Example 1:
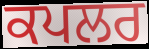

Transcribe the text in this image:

ਕਪਲਰ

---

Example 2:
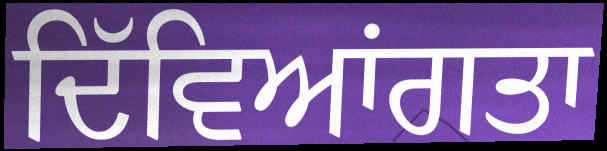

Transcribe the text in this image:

ਦਿੱਵਿਆਂਗਤਾ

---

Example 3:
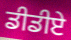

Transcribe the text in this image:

ਡੀਡੀਏ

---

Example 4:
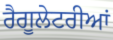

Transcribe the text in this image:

ਰੈਗੂਲੇਟਰੀਆਂ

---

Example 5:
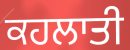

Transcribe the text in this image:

ਕਹਲਾਤੀ